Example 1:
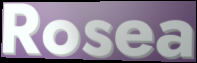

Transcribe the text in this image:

Rosea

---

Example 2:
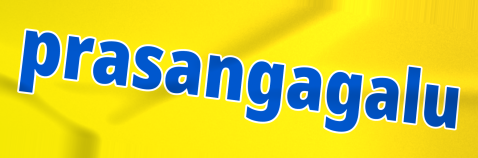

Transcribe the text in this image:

prasangagalu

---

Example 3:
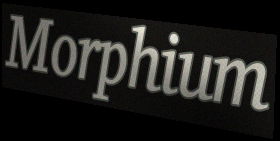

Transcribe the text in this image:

Morphium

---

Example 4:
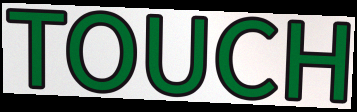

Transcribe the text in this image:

TOUCH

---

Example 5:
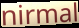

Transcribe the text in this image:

nirmal